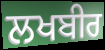
ਲਖਬੀਰ